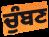
ਚੁੰਬਣ